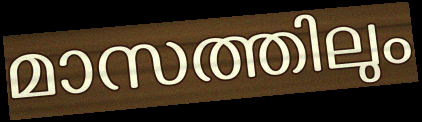
മാസത്തിലും